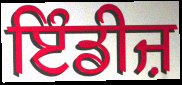
ਇੰਡੀਜ਼